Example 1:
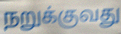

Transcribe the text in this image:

நறுக்குவது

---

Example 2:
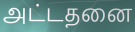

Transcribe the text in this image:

அட்டதனை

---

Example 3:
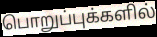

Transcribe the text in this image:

பொறுப்புக்களில்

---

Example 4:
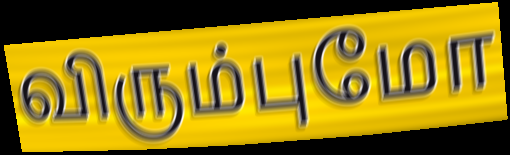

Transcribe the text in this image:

விரும்புமோ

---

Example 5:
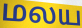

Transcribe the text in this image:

மலய